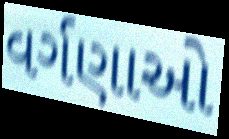
વર્ગણાઓ